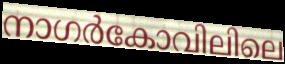
നാഗർകോവിലിലെ